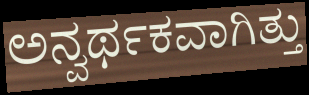
ಅನ್ವರ್ಥಕವಾಗಿತ್ತು